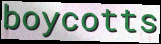
boycotts